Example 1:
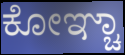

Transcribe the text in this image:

ಕೋಞ್ಚಾ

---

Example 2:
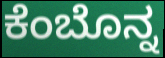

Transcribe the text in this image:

ಕೆಂಬೊನ್ನ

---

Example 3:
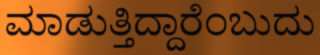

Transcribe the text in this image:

ಮಾಡುತ್ತಿದ್ದಾರೆಂಬುದು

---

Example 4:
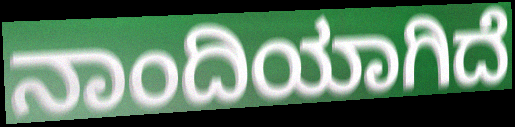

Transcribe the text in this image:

ನಾಂದಿಯಾಗಿದೆ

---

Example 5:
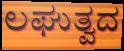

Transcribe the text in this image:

ಲಘುತ್ವದ